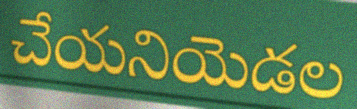
చేయనియెడల